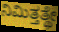
ನಿಮಿತ್ತತ್ಥೇ